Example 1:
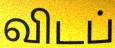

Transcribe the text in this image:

விடப்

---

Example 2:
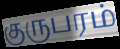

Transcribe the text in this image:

குருபரம்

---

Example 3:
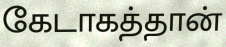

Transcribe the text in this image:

கேடாகத்தான்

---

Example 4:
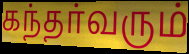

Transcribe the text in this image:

கந்தர்வரும்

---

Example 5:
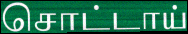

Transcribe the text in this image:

சொட்டாய்